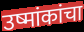
उष्मांकांचा